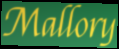
Mallory